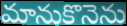
మానుకొనెను